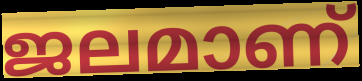
ജലമാണ്